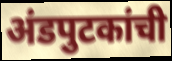
अंडपुटकांची